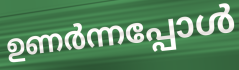
ഉണർന്നപ്പോൾ